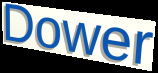
Dower